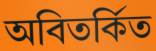
অবিতর্কিত